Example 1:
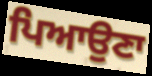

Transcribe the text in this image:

ਪਿਆਉਣਾ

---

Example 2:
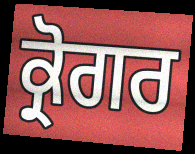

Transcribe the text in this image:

ਕ੍ਰੋਗਰ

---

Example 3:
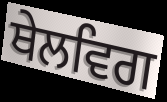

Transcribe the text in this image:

ਥੇਲਵਿਗ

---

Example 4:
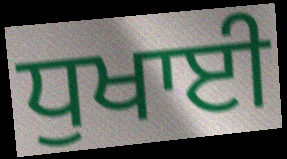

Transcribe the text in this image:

ਧੁਖਾਈ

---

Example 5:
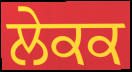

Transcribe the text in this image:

ਲੇਕਕ